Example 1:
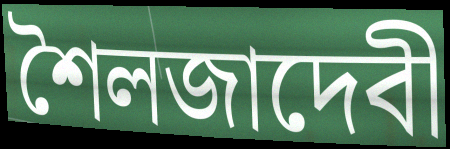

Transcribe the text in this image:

শৈলজাদেবী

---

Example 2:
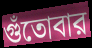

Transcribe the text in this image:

গুঁতোবার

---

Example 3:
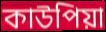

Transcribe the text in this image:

কাউপিয়া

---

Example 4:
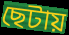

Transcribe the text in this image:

ছেটায়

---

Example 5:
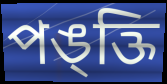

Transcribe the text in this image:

পঙ্‌ক্তি